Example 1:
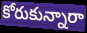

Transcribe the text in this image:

కోరుకున్నారా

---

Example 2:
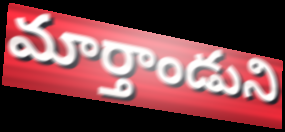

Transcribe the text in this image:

మార్తాండుని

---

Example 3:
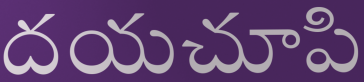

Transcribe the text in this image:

దయచూపి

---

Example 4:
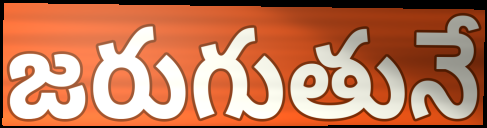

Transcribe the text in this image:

జరుగుతునే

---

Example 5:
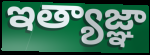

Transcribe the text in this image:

ఇత్యాజ్ఞా